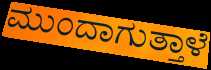
ಮುಂದಾಗುತ್ತಾಳೆ